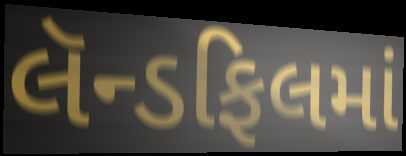
લૅન્ડફિલમાં